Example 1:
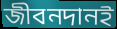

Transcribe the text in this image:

জীবনদানই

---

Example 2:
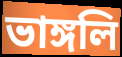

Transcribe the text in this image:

ভাঙ্গলি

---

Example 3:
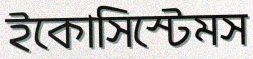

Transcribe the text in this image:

ইকোসিস্টেমস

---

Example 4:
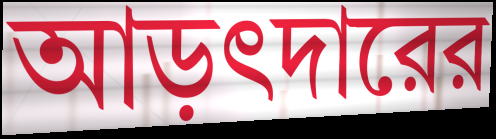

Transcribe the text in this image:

আড়ৎদারের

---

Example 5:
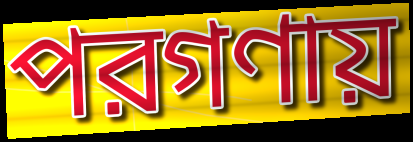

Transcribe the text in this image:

পরগণায়